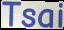
Tsai